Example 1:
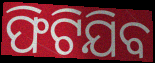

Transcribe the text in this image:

ଫିଟିଯିବ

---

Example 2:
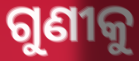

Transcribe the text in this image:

ଗୁଣୀକୁ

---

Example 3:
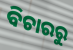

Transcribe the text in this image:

ବିଚାରରୁ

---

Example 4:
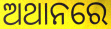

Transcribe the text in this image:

ଅଥାନରେ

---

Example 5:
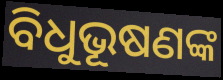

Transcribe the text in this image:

ବିଧୁଭୂଷଣଙ୍କ